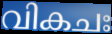
വികചഃ